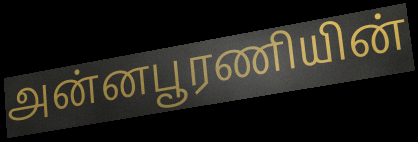
அன்னபூரணியின்